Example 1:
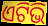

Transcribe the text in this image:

ଏଟିଭି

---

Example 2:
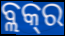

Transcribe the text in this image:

ବ୍ଲକ୍‍ର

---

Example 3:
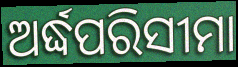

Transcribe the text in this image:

ଅର୍ଦ୍ଧପରିସୀମା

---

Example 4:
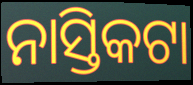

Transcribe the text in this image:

ନାସ୍ତିକଟା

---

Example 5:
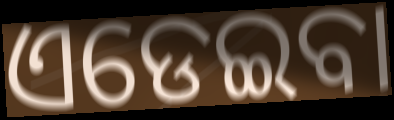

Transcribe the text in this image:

ଏଡେଇବା